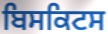
ਬਿਸਕਿਟਸ